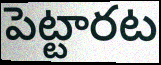
పెట్టారట